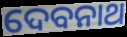
ଦେବନାଥ